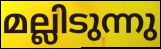
മല്ലിടുന്നു